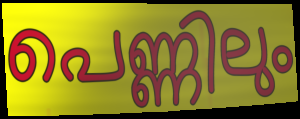
പെണ്ണിലും